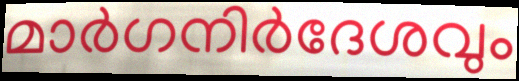
മാർഗനിർദേശവും